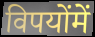
विपयोंमें